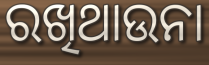
ରଖିଥାଉନା